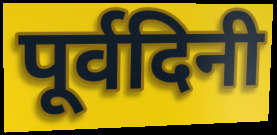
पूर्वदिनी